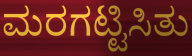
ಮರಗಟ್ಟಿಸಿತು